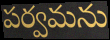
పర్వమను